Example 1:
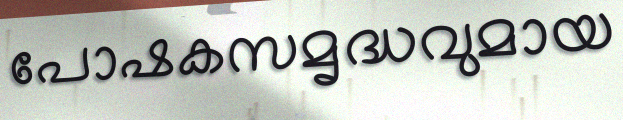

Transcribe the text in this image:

പോഷകസമൃദ്ധവുമായ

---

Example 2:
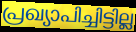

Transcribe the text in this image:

പ്രഖ്യാപിച്ചിട്ടില്ല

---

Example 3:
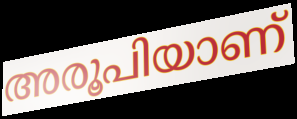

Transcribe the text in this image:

അരൂപിയാണ്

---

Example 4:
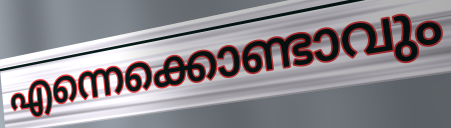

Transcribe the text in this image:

എന്നെക്കൊണ്ടാവും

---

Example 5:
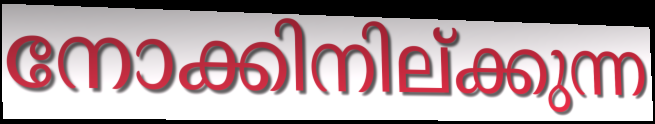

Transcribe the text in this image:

നോക്കിനില്ക്കുന്ന